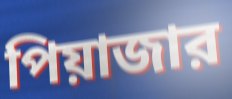
পিয়াজার